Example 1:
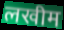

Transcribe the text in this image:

लखीम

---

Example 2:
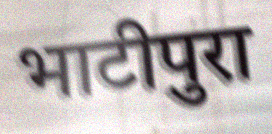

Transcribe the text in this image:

भाटीपुरा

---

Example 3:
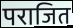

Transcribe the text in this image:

पराजित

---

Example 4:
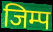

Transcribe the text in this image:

जिम्प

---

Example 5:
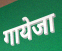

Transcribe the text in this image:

गायेजा